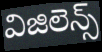
విజిలెన్స్